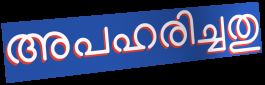
അപഹരിച്ചതു